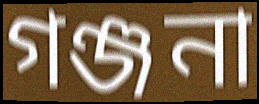
গঞ্জনা